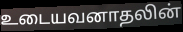
உடையவனாதலின்